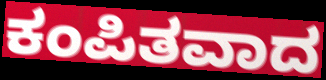
ಕಂಪಿತವಾದ